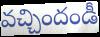
వచ్చిందండీ